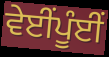
ਵੇਈਂਪੂੰਈਂ